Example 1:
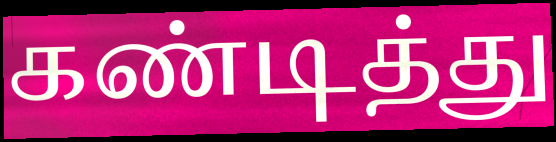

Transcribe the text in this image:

கண்டித்து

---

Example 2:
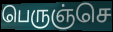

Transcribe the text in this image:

பெருஞ்செ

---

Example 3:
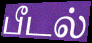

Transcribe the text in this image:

பீடல்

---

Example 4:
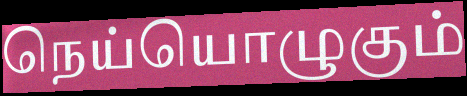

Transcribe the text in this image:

நெய்யொழுகும்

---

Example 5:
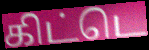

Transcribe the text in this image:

கிட்டெ